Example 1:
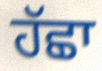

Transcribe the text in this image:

ਹੱਛਾ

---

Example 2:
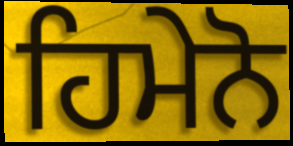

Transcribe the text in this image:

ਹਿਮੇਨੋ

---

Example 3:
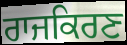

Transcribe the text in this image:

ਰਾਜਕਿਰਣ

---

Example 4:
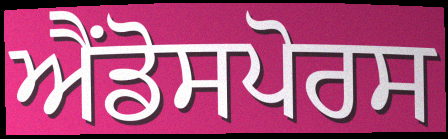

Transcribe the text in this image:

ਐਂਡੋਸਪੋਰਸ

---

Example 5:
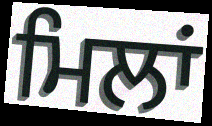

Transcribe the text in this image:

ਮਿਲਾਂ